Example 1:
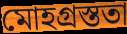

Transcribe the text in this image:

মোহগ্রস্ততা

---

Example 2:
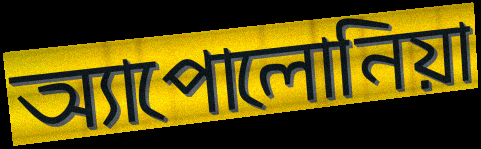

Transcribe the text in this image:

অ্যাপোলোনিয়া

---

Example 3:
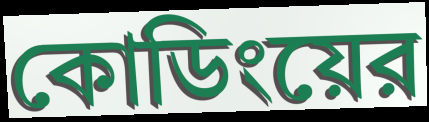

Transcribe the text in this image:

কোডিংয়ের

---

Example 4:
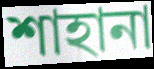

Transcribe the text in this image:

শাহানা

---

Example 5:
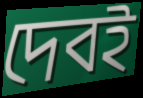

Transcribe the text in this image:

দেবই